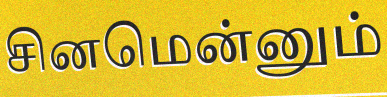
சினமென்னும்